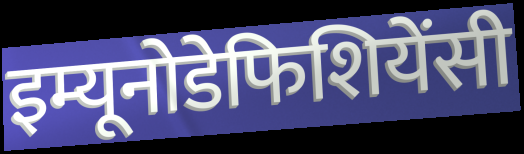
इम्यूनोडेफिशियेंसी